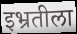
इभ्रतीला